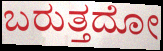
ಬರುತ್ತದೋ